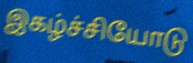
இகழ்ச்சியோடு